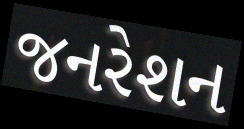
જનરેશન